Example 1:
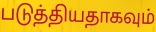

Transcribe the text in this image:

படுத்தியதாகவும்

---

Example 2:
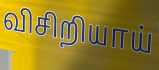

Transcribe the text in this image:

விசிறியாய்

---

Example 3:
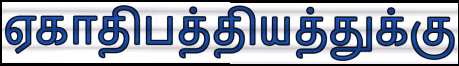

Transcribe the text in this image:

ஏகாதிபத்தியத்துக்கு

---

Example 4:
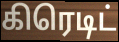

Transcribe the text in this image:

கிரெடிட்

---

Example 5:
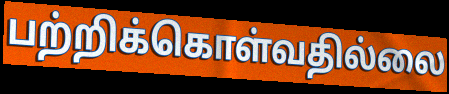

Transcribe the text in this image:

பற்றிக்கொள்வதில்லை